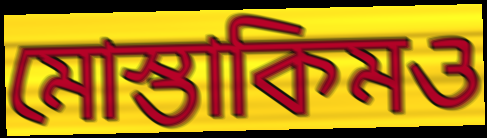
মোস্তাকিমও